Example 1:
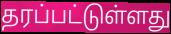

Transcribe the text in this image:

தரப்பட்டுள்ளது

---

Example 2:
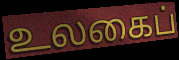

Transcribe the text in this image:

உலகைப்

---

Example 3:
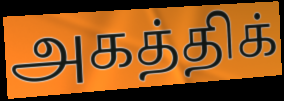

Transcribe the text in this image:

அகத்திக்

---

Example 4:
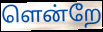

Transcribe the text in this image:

ளென்றே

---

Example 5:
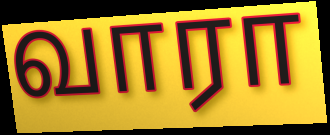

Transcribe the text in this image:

வாரா